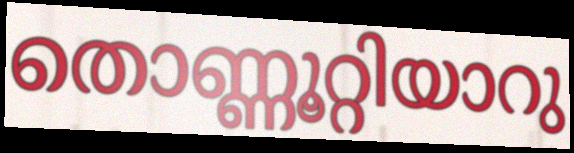
തൊണ്ണൂറ്റിയാറു